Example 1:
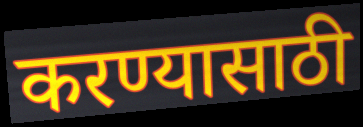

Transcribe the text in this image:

करण्यासाठी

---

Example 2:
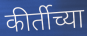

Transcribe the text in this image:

कीर्तीच्या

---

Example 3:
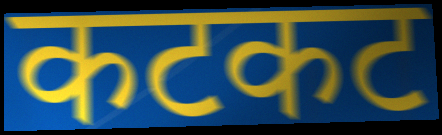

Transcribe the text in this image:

कटकट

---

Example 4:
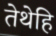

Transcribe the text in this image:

तेथेहि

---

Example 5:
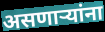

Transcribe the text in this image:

असणाऱ्यांना